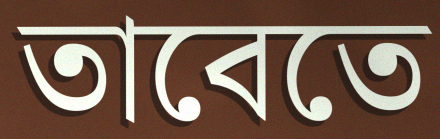
তাবেতে